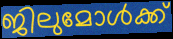
ജിലുമോൾക്ക്